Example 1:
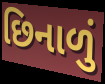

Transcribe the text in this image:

છિનાળું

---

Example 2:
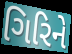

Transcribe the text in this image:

ગિરિને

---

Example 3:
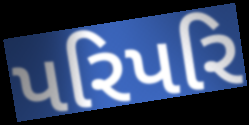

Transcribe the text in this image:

પરિપરિ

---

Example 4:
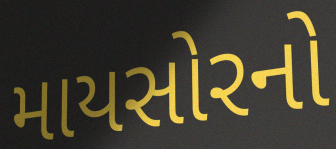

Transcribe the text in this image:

માયસોરનો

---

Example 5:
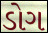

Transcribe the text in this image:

ડોગ